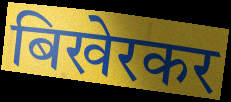
बिखेरकर